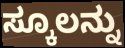
ಸ್ಕೂಲನ್ನು